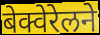
बेक्वेरेलने